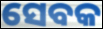
ସେବକ